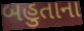
બહુતાના